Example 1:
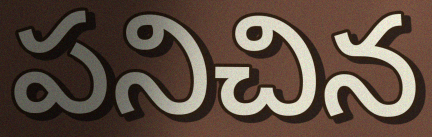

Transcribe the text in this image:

పనిచిన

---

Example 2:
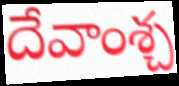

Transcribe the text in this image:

దేవాంశ్చ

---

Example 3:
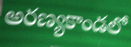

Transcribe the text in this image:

అరణ్యకాండలో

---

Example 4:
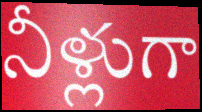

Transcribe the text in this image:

నీళ్లుగా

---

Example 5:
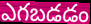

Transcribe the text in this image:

ఎగబడడం